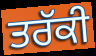
ਤਰੱਕੀ